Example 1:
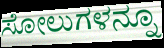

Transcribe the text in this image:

ಸೋಲುಗಳನ್ನೂ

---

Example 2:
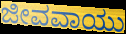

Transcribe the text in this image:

ಜೀವವಾಯು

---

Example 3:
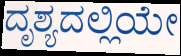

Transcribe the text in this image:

ದೃಶ್ಯದಲ್ಲಿಯೇ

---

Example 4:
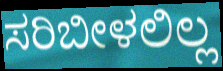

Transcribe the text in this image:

ಸರಿಬೀಳಲಿಲ್ಲ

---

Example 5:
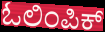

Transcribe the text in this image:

ಓಲಿಂಪಿಕ್